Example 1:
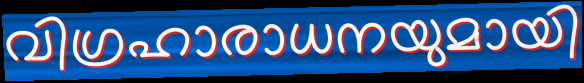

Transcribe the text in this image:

വിഗ്രഹാരാധനയുമായി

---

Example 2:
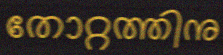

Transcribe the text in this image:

തോറ്റത്തിനു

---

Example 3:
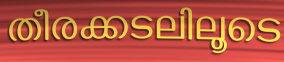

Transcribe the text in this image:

തീരക്കടലിലൂടെ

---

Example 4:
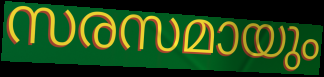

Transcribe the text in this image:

സരസമായും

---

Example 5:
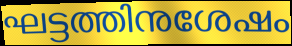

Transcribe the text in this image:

ഘട്ടത്തിനുശേഷം